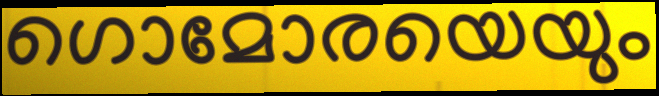
ഗൊമോരയെയും